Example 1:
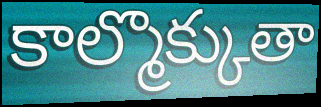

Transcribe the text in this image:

కాల్మొక్కుతా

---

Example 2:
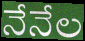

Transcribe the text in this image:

నేనేల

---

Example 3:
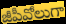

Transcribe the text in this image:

జీపీవోలుగా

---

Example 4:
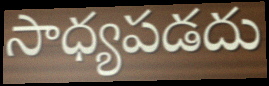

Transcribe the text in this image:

సాధ్యపడదు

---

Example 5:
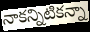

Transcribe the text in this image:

నాకన్నిటికన్నా